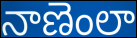
నాణెంలా